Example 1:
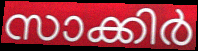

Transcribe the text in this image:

സാക്കിർ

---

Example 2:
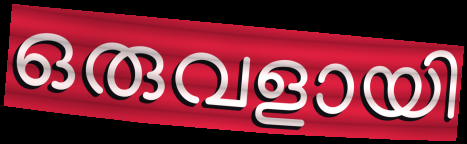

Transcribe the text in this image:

ഒരുവളായി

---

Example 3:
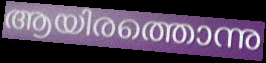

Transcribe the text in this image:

ആയിരത്തൊന്നു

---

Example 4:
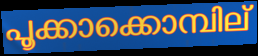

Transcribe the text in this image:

പൂക്കാക്കൊമ്പില്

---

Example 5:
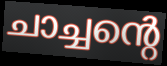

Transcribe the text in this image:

ചാച്ചന്റെ